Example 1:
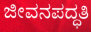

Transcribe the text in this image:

ಜೀವನಪದ್ಧತಿ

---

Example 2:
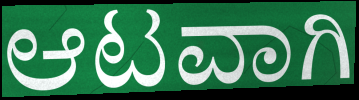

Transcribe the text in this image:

ಆಟವಾಗಿ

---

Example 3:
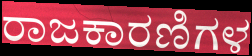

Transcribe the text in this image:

ರಾಜಕಾರಣಿಗಳ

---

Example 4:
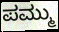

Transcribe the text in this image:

ಪಮ್ಮು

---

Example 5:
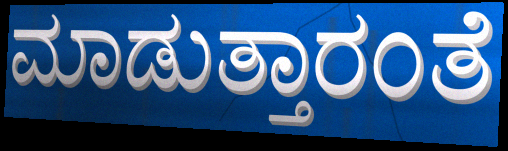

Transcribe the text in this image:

ಮಾಡುತ್ತಾರಂತೆ